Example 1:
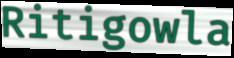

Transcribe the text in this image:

Ritigowla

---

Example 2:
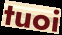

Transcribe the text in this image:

tuoi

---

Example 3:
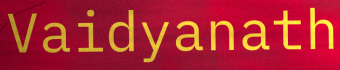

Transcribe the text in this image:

Vaidyanath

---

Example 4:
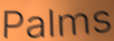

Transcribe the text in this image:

Palms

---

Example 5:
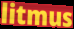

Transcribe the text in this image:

litmus